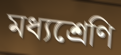
মধ্যশ্রেণি